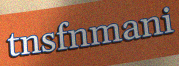
tnsfnmani